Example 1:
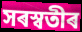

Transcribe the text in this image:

সৰস্বতীৰ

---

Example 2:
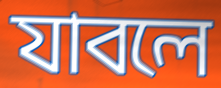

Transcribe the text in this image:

যাবলে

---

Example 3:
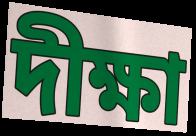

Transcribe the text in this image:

দীক্ষা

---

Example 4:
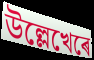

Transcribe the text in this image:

উল্লেখেৰে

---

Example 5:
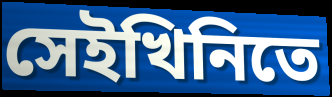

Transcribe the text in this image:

সেইখিনিতে